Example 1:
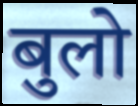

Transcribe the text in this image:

बुलो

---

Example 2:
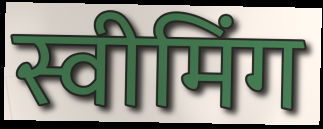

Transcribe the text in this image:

स्‍वीमिंग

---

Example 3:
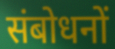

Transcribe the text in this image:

संबोधनों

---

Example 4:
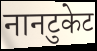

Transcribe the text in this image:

नानटुकेट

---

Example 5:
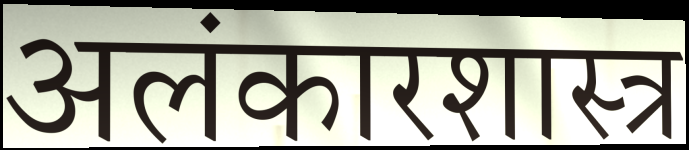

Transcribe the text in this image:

अलंकारशास्त्र